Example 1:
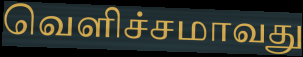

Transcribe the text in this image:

வெளிச்சமாவது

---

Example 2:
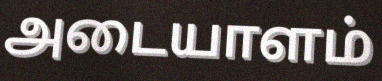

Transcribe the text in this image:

அடையாளம்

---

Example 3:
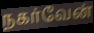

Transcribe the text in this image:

நகர்வேன்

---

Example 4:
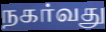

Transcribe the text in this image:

நகர்வது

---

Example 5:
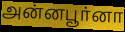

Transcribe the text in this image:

அன்னபூர்னா